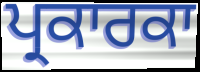
ਪ੍ਰਕਾਰਕਾ